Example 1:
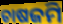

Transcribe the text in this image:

ଚାଷଜମି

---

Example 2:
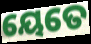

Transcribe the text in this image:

ୟେତେ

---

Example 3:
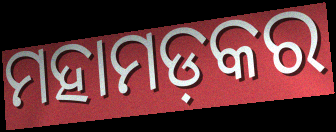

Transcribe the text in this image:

ମହାମଡ଼କର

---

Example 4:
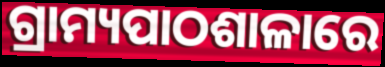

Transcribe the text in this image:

ଗ୍ରାମ୍ୟପାଠଶାଳାରେ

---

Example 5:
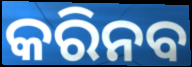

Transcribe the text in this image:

କରିନବ